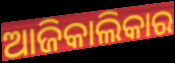
ଆଜିକାଲିକାର